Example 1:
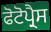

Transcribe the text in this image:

ਫੋਟੋਪ੍ਰੈਸ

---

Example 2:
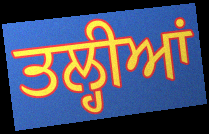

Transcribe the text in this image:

ਤਲ੍ਹੀਆਂ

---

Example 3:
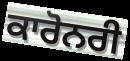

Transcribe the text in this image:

ਕਾਰੋਨਰੀ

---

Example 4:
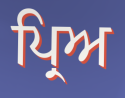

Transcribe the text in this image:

ਪ੍ਰਿਅ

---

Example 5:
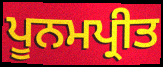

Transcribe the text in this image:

ਪੂਨਮਪ੍ਰੀਤ